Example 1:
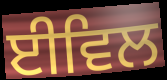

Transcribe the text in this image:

ਈਵਿਲ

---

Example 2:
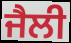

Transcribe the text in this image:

ਜੈਲੀ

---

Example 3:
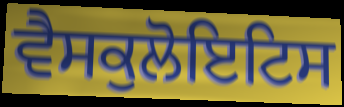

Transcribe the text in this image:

ਵੈਸਕੁਲੋਇਟਿਸ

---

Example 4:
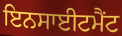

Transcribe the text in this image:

ਇਨਸਾਈਟਮੈਂਟ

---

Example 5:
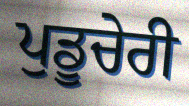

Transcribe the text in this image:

ਪੁਡੂਚੇਰੀ